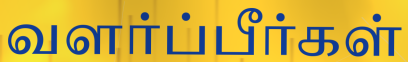
வளர்ப்பீர்கள்